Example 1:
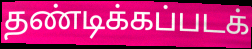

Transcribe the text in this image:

தண்டிக்கப்படக்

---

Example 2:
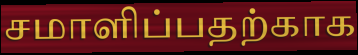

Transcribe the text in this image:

சமாளிப்பதற்காக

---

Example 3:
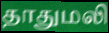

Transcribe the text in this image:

தாதுமலி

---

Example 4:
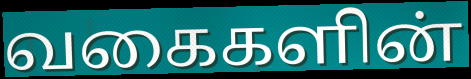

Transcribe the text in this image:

வகைகளின்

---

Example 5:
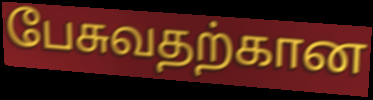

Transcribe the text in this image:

பேசுவதற்கான